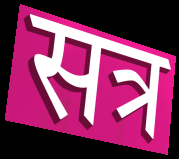
सत्र